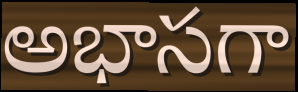
అభాసగా